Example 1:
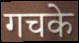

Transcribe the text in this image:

गचके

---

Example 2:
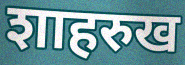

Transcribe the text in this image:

शाहरुख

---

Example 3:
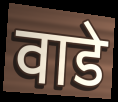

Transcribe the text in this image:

वाडे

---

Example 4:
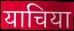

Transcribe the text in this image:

याचिया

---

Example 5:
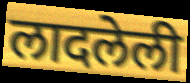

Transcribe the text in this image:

लादलेली